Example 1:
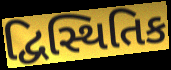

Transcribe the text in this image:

દ્વિસ્થિતિક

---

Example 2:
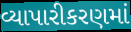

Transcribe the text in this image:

વ્યાપારીકરણમાં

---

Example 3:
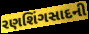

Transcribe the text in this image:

રણશિંગસાદની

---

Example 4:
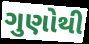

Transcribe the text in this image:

ગુણોથી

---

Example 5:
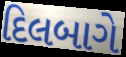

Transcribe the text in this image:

દિલબાગે